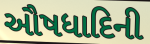
ઔષધાદિની